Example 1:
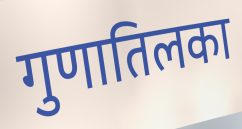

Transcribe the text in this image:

गुणातिलका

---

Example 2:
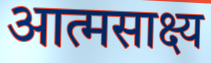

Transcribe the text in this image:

आत्मसाक्ष्य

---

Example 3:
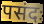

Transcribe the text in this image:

पसंदः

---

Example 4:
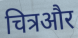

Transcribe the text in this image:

चित्रऔर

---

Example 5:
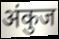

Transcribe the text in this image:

अंकुज